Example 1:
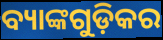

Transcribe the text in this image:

ବ୍ୟାଙ୍କଗୁଡ଼ିକର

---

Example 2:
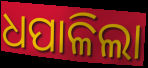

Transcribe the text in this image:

ଧପାଳିଲା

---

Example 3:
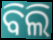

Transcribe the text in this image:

ବିଲି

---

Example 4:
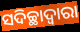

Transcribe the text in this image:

ସଦିଚ୍ଛାଦ୍ୱାରା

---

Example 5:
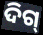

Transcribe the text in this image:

ଦିଗ୍